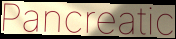
Pancreatic